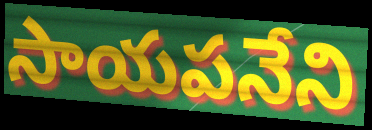
సాయపనేని